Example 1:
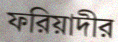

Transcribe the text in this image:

ফরিয়াদীর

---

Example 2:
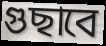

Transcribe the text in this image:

গুছাবে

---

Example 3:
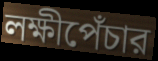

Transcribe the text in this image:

লক্ষীপেঁচার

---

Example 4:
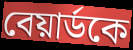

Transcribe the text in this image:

বেয়ার্ডকে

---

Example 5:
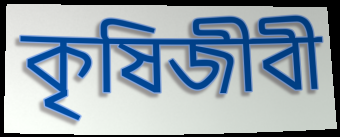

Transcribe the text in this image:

কৃষিজীবী